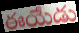
ఈయేడు